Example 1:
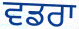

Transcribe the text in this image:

ਵਡਰਾ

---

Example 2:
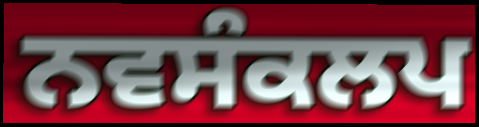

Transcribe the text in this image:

ਨਵਸੰਕਲਪ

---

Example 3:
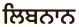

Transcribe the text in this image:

ਲਿਬਨਾਨ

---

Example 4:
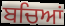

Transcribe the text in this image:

ਬਚਿਆਂ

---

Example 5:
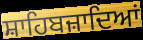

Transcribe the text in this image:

ਸ਼ਾਹਿਬਜ਼ਾਦਿਆਂ